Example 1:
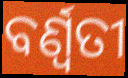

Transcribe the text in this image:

ବର୍ଣ୍ବତୀ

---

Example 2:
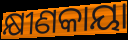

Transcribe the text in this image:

କ୍ଷୀଣକାୟା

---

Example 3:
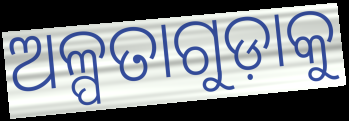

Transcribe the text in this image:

ଅଳ୍ପତାଗୁଡ଼ାକୁ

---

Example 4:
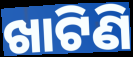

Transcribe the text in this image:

ଖାଟିଣି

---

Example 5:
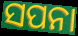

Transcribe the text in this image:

ସପନା